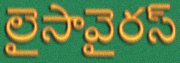
లైసావైరస్